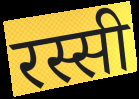
रस्सी